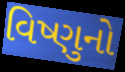
વિષ્ણુનો